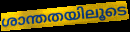
ശാന്തതയിലൂടെ